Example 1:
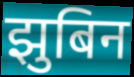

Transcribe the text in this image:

झुबिन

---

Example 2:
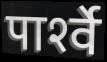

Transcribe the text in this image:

पार्श्वे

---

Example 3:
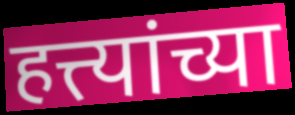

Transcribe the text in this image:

हत्त्यांच्या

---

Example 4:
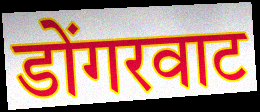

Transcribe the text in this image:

डोंगरवाट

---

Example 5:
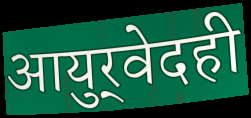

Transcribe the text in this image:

आयुर्वेदही